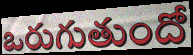
ఒరుగుతుందో